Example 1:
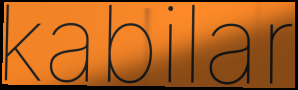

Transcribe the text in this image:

kabilar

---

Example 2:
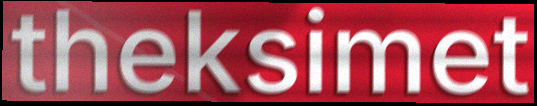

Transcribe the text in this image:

theksimet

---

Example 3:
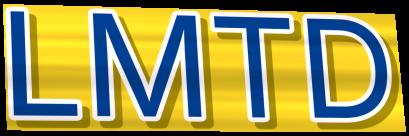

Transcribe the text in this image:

LMTD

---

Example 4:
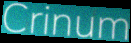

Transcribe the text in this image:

Crinum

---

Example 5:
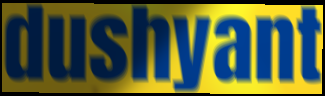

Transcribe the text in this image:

dushyant